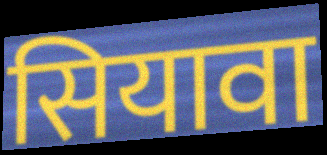
सियावा